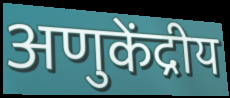
अणुकेंद्रीय